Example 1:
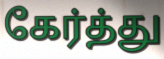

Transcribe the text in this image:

கேர்த்து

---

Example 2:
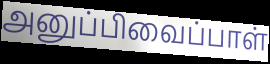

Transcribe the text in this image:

அனுப்பிவைப்பாள்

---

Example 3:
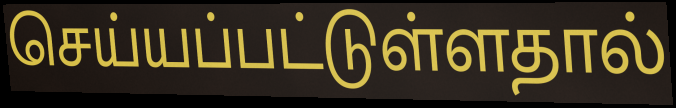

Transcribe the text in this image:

செய்யப்பட்டுள்ளதால்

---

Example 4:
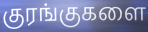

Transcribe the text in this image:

குரங்குகளை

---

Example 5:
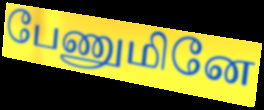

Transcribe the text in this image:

பேணுமினே